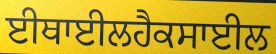
ਈਥਾਈਲਹੈਕਸਾਈਲ